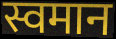
स्वमान